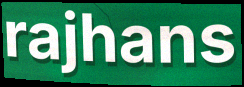
rajhans